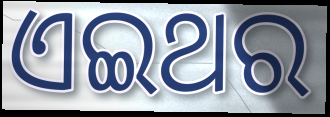
ଏଇଥର